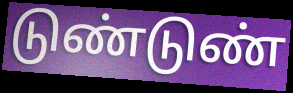
டுண்டுண்